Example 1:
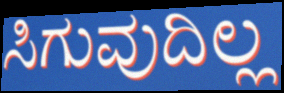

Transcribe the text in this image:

ಸಿಗುವುದಿಲ್ಲ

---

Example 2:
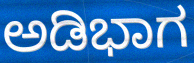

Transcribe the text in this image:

ಅಡಿಭಾಗ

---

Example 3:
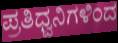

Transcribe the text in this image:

ಪ್ರತಿಧ್ವನಿಗಳಿಂದ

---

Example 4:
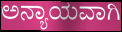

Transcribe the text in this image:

ಅನ್ಯಾಯವಾಗಿ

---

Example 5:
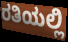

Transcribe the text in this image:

ರತಿಯಲ್ಲಿ